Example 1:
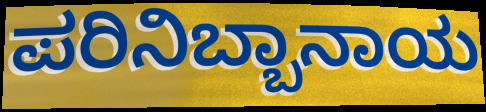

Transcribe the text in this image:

ಪರಿನಿಬ್ಬಾನಾಯ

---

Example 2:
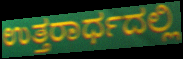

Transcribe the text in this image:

ಉತ್ತರಾರ್ಧದಲ್ಲಿ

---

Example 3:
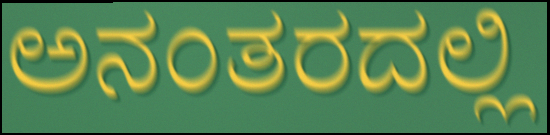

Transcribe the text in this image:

ಅನಂತರದಲ್ಲಿ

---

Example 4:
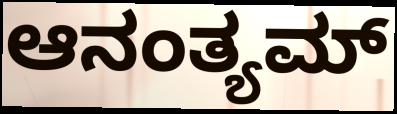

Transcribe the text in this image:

ಆನಂತ್ಯಮ್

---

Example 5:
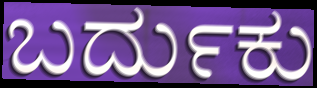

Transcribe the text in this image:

ಬರ್ದುಕು